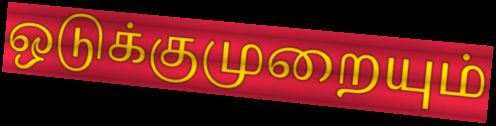
ஒடுக்குமுறையும்